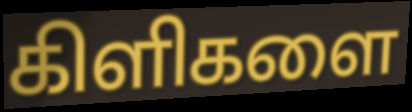
கிளிகளை